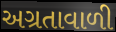
અગ્રતાવાળી